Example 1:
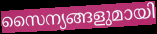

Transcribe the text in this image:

സൈന്യങ്ങളുമായി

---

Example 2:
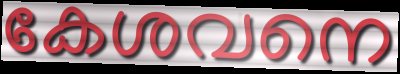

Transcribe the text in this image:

കേശവനെ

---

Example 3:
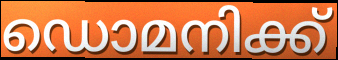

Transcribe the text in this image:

ഡൊമനിക്ക്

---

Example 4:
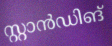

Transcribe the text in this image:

സ്റ്റാൻഡിങ്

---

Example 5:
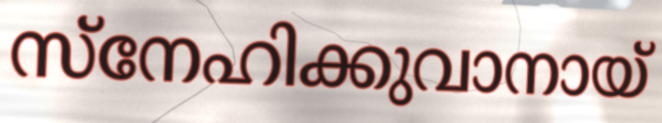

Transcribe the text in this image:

സ്നേഹിക്കുവാനായ്